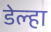
डेल्हा